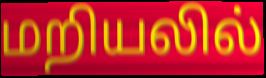
மறியலில்